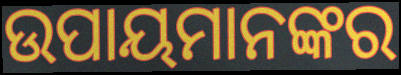
ଉପାୟମାନଙ୍କର